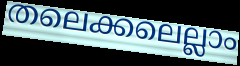
തലെക്കലെല്ലാം